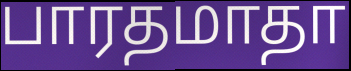
பாரதமாதா